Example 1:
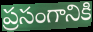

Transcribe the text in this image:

ప్రసంగానికి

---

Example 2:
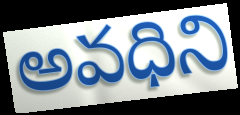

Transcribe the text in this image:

అవధిని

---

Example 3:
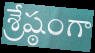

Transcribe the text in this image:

శ్రేష్ఠంగా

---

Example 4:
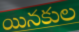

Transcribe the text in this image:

యినకుల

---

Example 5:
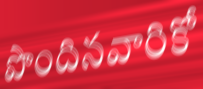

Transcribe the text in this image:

పొందినవారికో